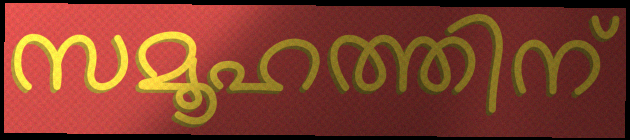
സമൂഹത്തിന്